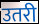
उतरी